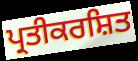
ਪ੍ਰਤੀਕਰਸ਼ਿਤ